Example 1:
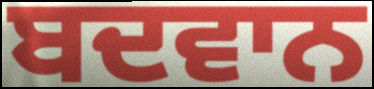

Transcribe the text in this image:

ਬਦਵਾਨ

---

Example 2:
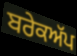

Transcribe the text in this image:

ਬਰੇਕਅੱਪ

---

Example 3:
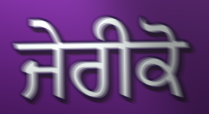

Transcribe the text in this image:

ਜੇਰੀਕੋ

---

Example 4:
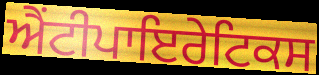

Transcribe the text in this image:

ਐਂਟੀਪਾਇਰੇਟਿਕਸ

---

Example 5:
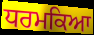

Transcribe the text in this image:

ਧਰਮਕਿਆ